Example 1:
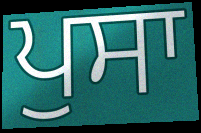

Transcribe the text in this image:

ਪੁਸਾ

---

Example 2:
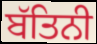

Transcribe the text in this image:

ਬੱਤਿਨੀ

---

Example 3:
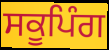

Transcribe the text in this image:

ਸਕੂਪਿੰਗ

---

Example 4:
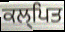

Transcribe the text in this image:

ਕਲ੍ਪਿਤ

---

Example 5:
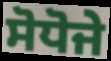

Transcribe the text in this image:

ਸੋਧੋਜੇ